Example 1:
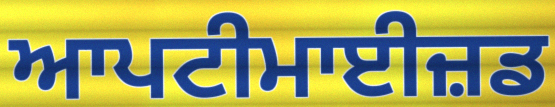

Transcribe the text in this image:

ਆਪਟੀਮਾਈਜ਼ਡ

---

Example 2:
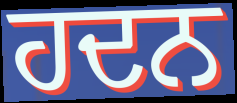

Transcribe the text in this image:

ਹਦਨ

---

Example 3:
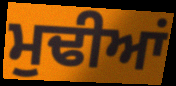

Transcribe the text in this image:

ਮੁਢੀਆਂ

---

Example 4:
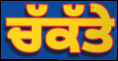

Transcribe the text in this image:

ਚੱਕੱਤੇ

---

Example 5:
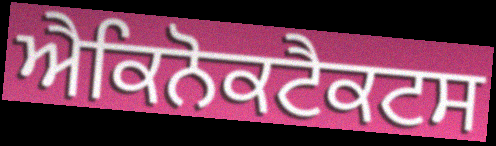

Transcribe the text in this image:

ਐਕਿਨੋਕਟੈਕਟਸ